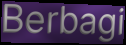
Berbagi